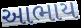
આભાય